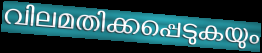
വിലമതിക്കപ്പെടുകയും